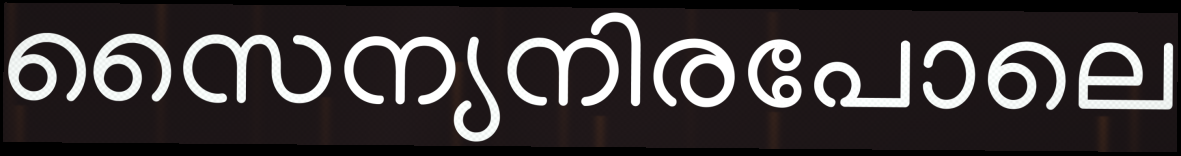
സൈന്യനിരപോലെ